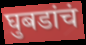
घुबडांचं